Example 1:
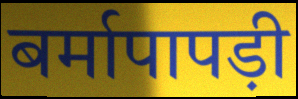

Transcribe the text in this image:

बर्मापापड़ी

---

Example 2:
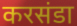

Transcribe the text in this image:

करसंडा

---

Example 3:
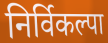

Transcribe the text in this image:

निर्विकल्पा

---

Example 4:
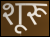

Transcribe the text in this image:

शूरू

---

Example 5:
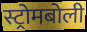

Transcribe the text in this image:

स्ट्रोमबोली